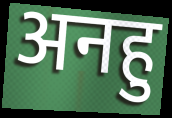
अनहु